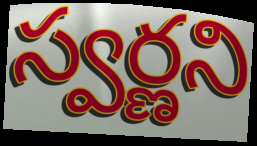
స్వర్ణని